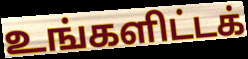
உங்களிட்டக்